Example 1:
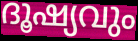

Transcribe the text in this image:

ദൂഷ്യവും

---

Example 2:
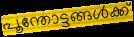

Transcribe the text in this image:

പൂന്തോട്ടങ്ങൾക്ക്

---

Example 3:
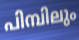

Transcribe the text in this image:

പിമ്പിലും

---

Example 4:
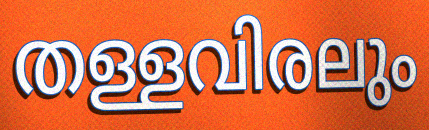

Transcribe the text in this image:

തള്ളവിരലും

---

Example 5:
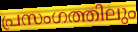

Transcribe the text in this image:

പ്രസംഗത്തിലും